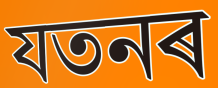
যতনৰ